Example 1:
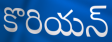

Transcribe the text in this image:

కొరియన్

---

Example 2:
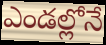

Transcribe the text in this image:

ఎండల్లోనే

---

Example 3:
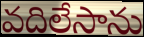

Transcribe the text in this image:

వదిలేసాను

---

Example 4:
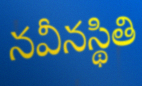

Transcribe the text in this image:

నవీనస్థితి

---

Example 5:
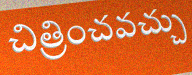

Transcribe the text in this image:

చిత్రించవచ్చు